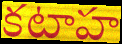
కటాహ